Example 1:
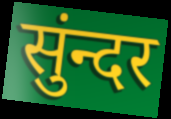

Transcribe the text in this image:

सुंन्दर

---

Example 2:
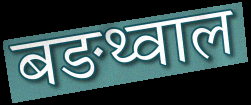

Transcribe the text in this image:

बङथ्वाल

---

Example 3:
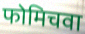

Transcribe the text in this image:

फोमिचवा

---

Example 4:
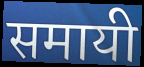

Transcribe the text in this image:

समायी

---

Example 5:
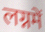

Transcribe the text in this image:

लग्नमें